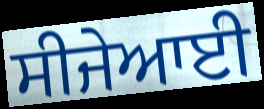
ਸੀਜੇਆਈ